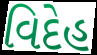
વિદેહ